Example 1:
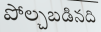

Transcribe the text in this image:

పోల్చబడినది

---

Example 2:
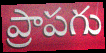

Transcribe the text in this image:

ప్రాపగు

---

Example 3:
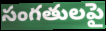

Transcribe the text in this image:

సంగతులపై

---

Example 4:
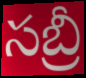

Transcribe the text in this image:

సబ్రీ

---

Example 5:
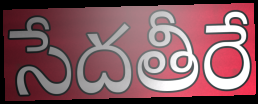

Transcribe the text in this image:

సేదతీరే